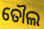
ତୌଲ